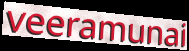
veeramunai